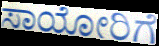
ಸಾಯೋರಿಗೆ